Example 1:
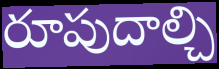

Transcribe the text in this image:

రూపుదాల్చి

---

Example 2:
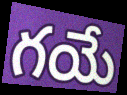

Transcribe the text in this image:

గయే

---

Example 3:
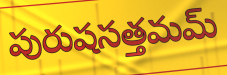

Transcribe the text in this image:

పురుషసత్తమమ్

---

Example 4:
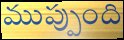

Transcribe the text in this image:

ముప్పుంది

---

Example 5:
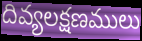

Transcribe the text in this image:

దివ్యలక్షణములు